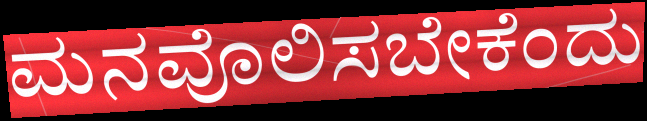
ಮನವೊಲಿಸಬೇಕೆಂದು